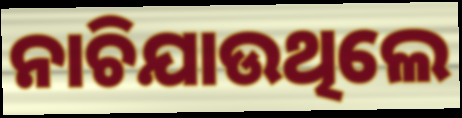
ନାଚିଯାଉଥିଲେ